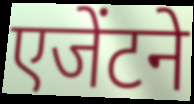
एजेंटने